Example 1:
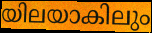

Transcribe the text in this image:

യിലയാകിലും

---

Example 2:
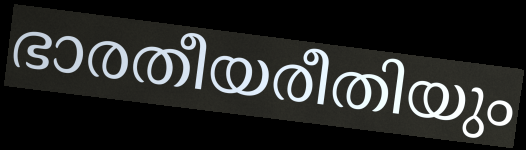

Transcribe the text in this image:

ഭാരതീയരീതിയും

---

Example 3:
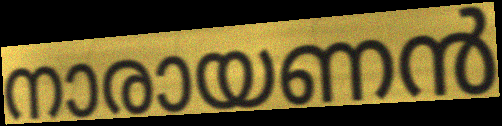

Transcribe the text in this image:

നാരായണൻ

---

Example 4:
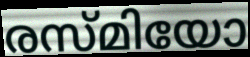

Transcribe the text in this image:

രസ്മിയോ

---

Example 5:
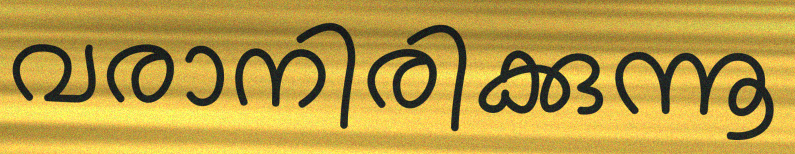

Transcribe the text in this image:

വരാനിരിക്കുന്നൂ